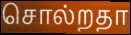
சொல்றதா